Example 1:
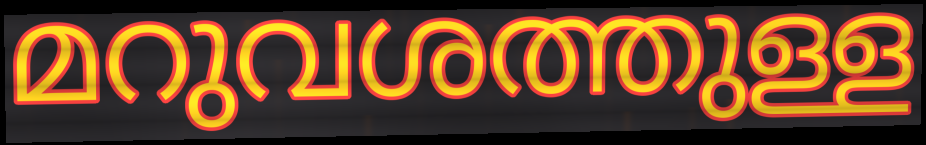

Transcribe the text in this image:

മറുവശത്തുള്ള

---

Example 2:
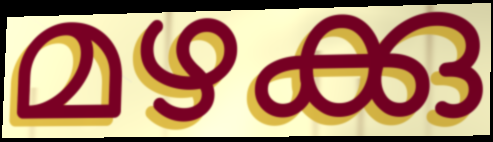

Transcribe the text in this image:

മഴക്കു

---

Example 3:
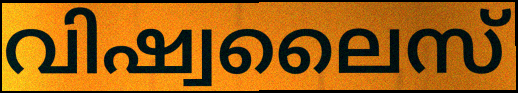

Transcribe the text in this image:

വിഷ്വലൈസ്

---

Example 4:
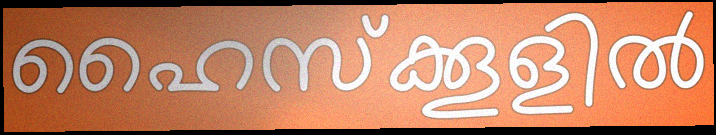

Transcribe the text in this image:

ഹൈസ്ക്കൂളിൽ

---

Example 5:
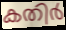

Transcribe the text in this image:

കതിർ